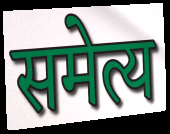
समेत्य